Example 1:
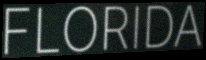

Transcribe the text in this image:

FLORIDA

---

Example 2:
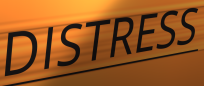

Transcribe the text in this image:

DISTRESS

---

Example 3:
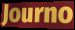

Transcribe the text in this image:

Journo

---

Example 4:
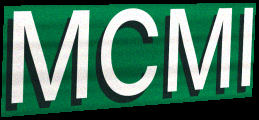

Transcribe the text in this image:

MCMI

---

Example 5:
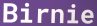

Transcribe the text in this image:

Birnie